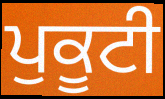
ਪੁਕੂਟੀ